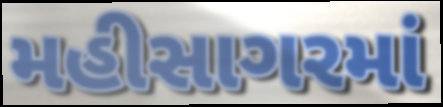
મહીસાગરમાં